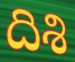
దిశి